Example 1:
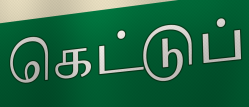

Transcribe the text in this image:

கெட்டுப்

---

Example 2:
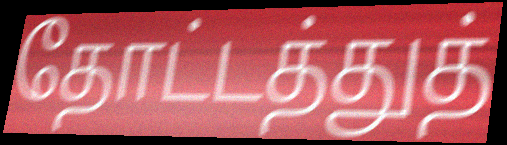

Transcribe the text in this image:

தோட்டத்துத்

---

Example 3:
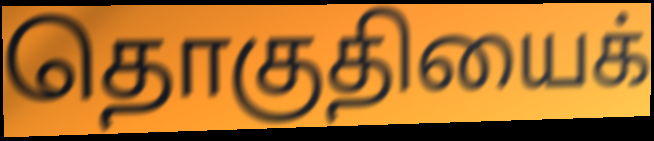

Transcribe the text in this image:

தொகுதியைக்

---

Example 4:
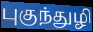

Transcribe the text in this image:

புகுந்துழி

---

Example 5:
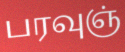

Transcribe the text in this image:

பரவுஞ்